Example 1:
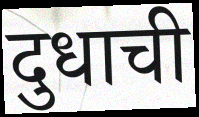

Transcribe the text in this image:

दुधाची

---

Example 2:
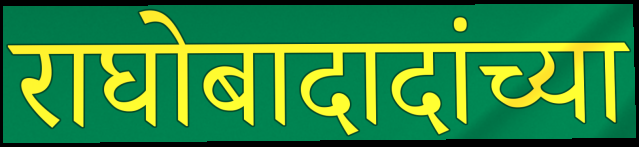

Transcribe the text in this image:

राघोबादादांच्या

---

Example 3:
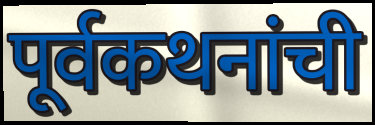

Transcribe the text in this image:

पूर्वकथनांची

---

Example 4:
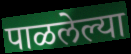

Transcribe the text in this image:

पाळलेल्या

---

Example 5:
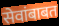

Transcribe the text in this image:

सेवांबाबत